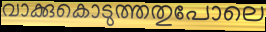
വാക്കുകൊടുത്തതുപോലെ